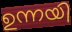
ഉന്നയി